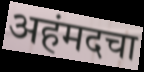
अहंमदचा